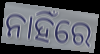
ନାହିଁରେ